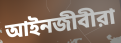
আইনজীবীরা